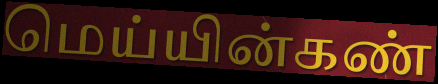
மெய்யின்கண்